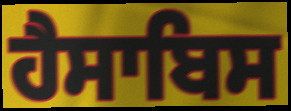
ਹੈਸਾਬਿਸ